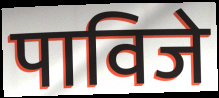
पाविजे